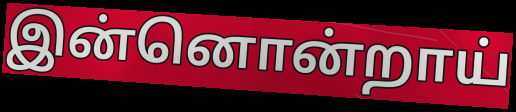
இன்னொன்றாய்